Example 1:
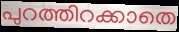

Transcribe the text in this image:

പുറത്തിറക്കാതെ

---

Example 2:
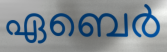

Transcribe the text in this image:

ഏബെർ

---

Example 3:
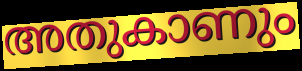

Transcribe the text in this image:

അതുകാണും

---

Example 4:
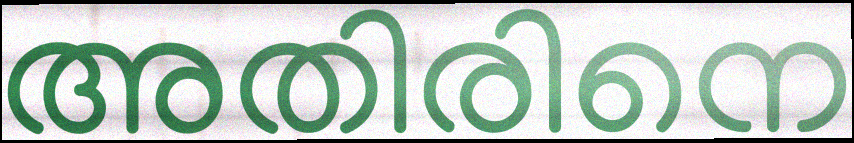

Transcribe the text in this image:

അതിരിനെ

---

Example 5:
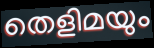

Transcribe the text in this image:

തെളിമയും